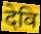
देवि